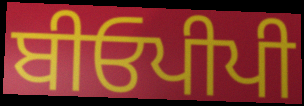
ਬੀਓਪੀਪੀ